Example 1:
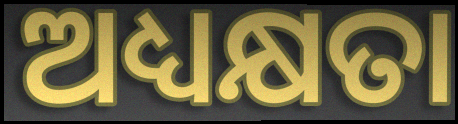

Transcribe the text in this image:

ଅଧ୍ୟକ୍ଷତା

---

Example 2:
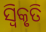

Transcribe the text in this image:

ସ୍ଵିକୃତି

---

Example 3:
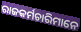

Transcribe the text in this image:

ରାଜକର୍ମଚାରିମାନେ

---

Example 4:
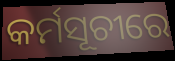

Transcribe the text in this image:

କର୍ମସୂଚୀରେ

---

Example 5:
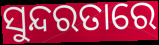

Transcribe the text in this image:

ସୁନ୍ଦରତାରେ